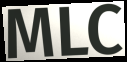
MLC